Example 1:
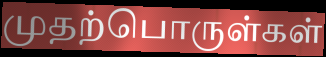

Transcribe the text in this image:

முதற்பொருள்கள்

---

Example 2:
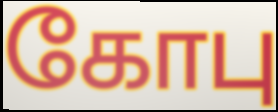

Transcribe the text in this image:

கோபு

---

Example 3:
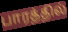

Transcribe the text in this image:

பாரத்தில்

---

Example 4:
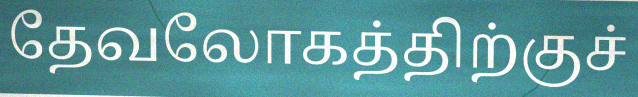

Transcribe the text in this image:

தேவலோகத்திற்குச்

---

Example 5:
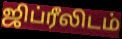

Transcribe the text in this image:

ஜிப்ரீலிடம்